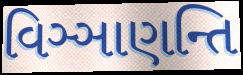
વિઞ્ઞાણન્તિ